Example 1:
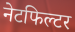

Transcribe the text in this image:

नेटफिल्टर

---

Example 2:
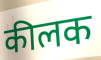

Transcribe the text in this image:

कीलक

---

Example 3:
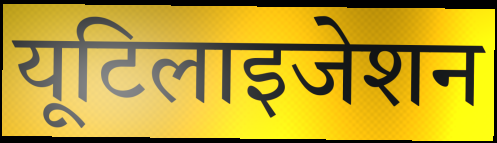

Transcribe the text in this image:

यूटिलाइजेशन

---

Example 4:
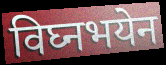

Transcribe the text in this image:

विघ्नभयेन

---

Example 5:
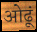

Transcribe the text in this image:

ओढ़ूं